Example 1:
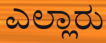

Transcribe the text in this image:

ಎಲ್ಲಾರು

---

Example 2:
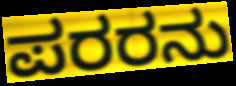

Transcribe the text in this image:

ಪರರನು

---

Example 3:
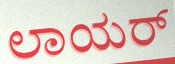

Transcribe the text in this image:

ಲಾಯರ್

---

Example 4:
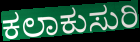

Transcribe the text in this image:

ಕಲಾಕುಸುರಿ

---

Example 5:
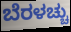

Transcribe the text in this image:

ಬೆರಳಚ್ಚು